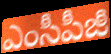
ఎంసీపీజీ